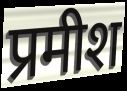
प्रमीश